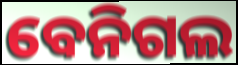
ବେନିଗଲ